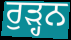
ਰੁੜ੍ਹਨ